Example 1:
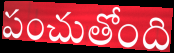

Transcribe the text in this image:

పంచుతోంది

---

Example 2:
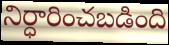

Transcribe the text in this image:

నిర్ధారించబడింది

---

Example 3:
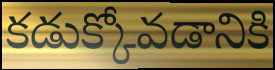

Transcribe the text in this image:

కడుక్కోవడానికి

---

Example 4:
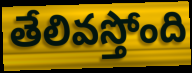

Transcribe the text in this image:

తేలివస్తోంది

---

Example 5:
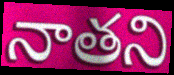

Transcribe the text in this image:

నాతని